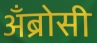
अँब्रोसी